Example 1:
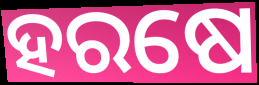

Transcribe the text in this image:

ହରଷେ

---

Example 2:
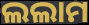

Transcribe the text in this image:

ଲଲାମ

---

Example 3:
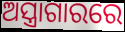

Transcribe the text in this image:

ଅସ୍ତ୍ରାଗାରରେ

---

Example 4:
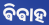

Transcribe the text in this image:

ଵିଵାହ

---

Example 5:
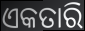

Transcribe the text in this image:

ଏକତାରି